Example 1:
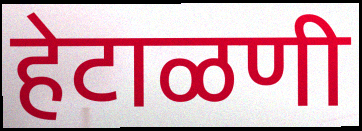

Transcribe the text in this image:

हेटाळणी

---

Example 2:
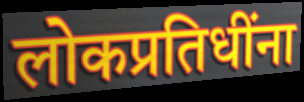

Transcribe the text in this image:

लोकप्रतिधींना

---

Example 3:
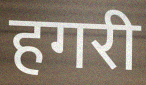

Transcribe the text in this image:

हगरी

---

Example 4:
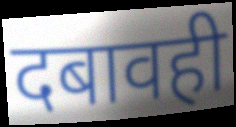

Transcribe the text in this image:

दबावही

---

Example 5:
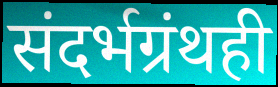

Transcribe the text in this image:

संदर्भग्रंथही